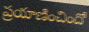
ప్రయాణించిందో